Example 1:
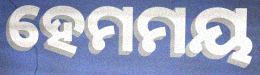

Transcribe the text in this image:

ହେମମୟ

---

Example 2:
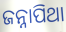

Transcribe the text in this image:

ଜନ୍ନାପିଥା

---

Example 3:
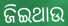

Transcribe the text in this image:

ଜିଇଥାଉ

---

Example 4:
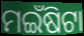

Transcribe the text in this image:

ମଇଁଷିଟା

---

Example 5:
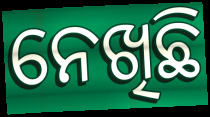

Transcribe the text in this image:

ନେଖିଛି